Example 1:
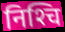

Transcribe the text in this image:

निश्चि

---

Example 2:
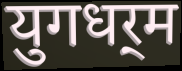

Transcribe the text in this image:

युगधर्म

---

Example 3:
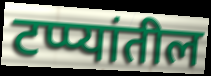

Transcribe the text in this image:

टप्प्यांतील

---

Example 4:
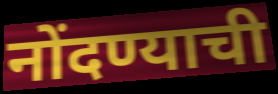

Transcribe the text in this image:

नोंदण्याची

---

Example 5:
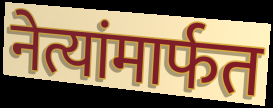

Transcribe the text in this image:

नेत्यांमार्फत